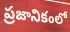
ప్రజానికంలో